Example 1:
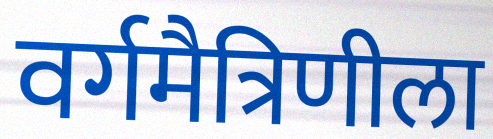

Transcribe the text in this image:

वर्गमैत्रिणीला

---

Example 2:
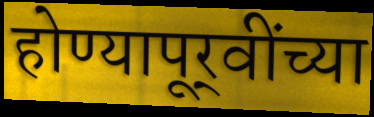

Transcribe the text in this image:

होण्यापूर्वींच्या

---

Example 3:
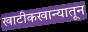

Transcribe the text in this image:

खाटीकखान्यातून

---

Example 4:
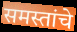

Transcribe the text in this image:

समस्तांचे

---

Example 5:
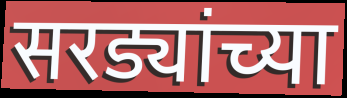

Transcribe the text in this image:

सरड्यांच्या